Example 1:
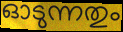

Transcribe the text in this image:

ഓടുന്നതും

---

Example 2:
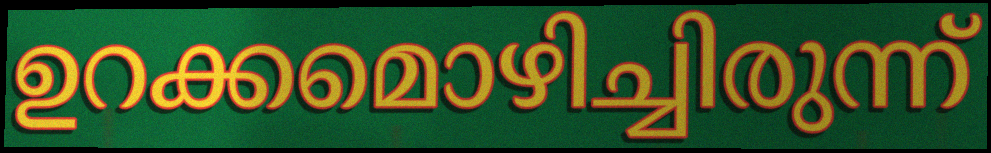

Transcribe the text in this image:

ഉറക്കമൊഴിച്ചിരുന്ന്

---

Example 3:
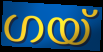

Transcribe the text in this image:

ഗയ്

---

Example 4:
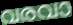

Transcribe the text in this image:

വരവാ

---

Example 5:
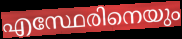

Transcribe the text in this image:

എസ്ഥേരിനെയും